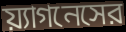
য়্যাগনেসের